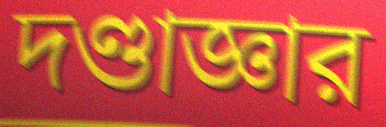
দণ্ডাজ্ঞার